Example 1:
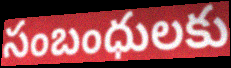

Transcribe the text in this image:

సంబంధులకు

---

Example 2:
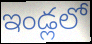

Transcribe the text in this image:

ఇండ్లలో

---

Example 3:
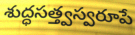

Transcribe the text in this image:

శుద్ధసత్త్వస్వరూపే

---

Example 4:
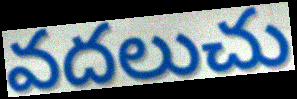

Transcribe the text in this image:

వదలుచు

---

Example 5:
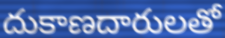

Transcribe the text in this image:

దుకాణదారులతో